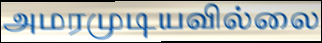
அமரமுடியவில்லை